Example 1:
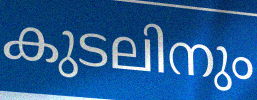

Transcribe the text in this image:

കുടലിനും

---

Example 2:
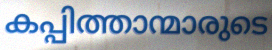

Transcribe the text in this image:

കപ്പിത്താന്മാരുടെ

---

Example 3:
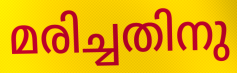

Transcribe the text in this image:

മരിച്ചതിനു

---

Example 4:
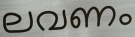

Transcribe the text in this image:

ലവണം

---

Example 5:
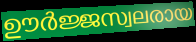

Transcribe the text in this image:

ഊർജ്ജസ്വലരായ